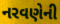
નરવણેની